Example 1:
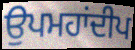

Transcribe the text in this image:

ਉਪਮਹਾਂਦੀਪ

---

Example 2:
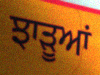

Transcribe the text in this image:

ਝਾੜੂਆਂ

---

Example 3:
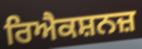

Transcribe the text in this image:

ਰਿਐਕਸ਼ਨਜ਼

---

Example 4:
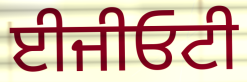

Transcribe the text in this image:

ਈਜੀਓਟੀ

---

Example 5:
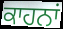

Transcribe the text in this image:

ਕਾਹਨਾਂ